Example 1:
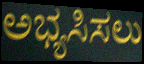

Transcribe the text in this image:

ಅಭ್ಯಸಿಸಲು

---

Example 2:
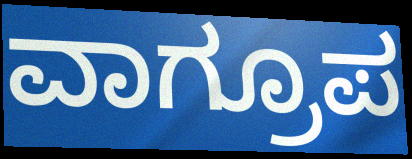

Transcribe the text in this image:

ವಾಗ್ರೂಪ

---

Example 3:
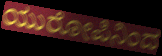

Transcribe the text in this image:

ಯುರೋಪಿನಿಂದ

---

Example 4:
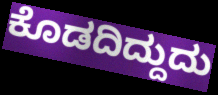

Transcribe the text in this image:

ಕೊಡದಿದ್ದುದು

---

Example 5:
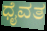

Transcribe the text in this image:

ಧೈವತ